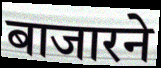
बाजारने